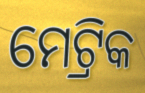
ମେଟ୍ରିକ